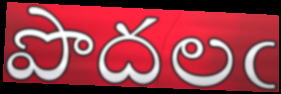
పొదలఁ